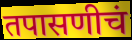
तपासणीचं